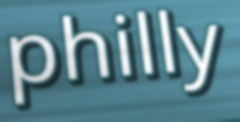
philly